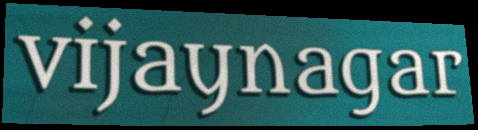
vijaynagar